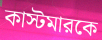
কাস্টমারকে